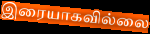
இரையாகவில்லை